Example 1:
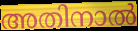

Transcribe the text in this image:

അതിനാൽ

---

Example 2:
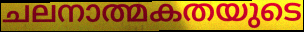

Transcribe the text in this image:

ചലനാത്മകതയുടെ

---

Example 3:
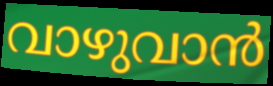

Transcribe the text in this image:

വാഴുവാൻ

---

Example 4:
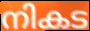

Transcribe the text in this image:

നികട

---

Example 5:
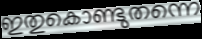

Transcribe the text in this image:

ഇതുകൊണ്ടുതന്നെ